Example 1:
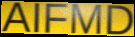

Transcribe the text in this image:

AIFMD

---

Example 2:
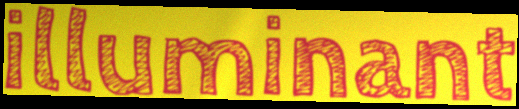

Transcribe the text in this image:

illuminant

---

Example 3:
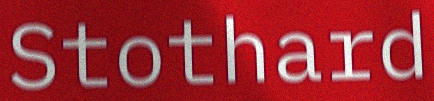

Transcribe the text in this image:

Stothard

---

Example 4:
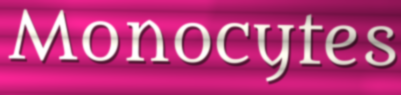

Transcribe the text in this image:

Monocytes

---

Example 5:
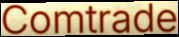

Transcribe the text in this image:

Comtrade